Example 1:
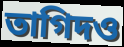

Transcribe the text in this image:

তাগিদও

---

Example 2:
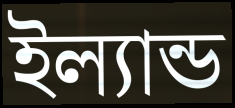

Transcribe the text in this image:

ইল্যান্ড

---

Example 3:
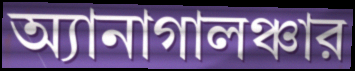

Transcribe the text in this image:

অ্যানাগালঞ্চার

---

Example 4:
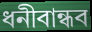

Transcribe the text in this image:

ধনীবান্ধব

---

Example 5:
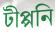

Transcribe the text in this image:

টীপ্পনি